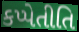
કપ્પેતીતિ